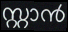
സ്റ്റാൻ